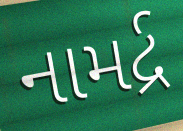
નામર્દ્ર